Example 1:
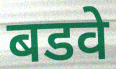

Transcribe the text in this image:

बडवे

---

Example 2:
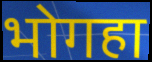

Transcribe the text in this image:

भोगहा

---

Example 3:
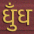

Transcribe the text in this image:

धुँध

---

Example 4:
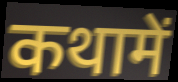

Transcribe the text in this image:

कथामें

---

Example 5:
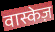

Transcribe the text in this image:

वास्केज़